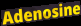
Adenosine